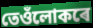
তেওঁলোকৰে